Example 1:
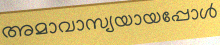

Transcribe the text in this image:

അമാവാസ്യയായപ്പോൾ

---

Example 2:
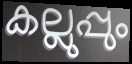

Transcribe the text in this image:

കല്ലുപ്പും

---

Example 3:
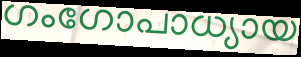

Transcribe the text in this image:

ഗംഗോപാധ്യായ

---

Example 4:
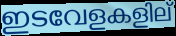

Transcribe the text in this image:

ഇടവേളകളില്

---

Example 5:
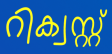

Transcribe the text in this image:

റിക്വസ്റ്റ്